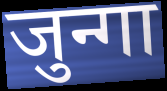
जुन्गा